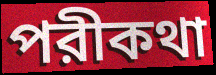
পরীকথা